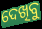
ଦେଖିବୁ